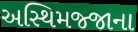
અસ્થિમજ્જાના